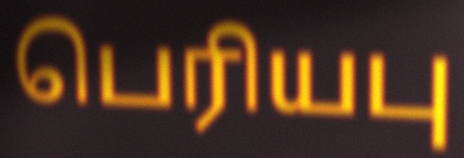
பெரியபு